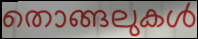
തൊങ്ങലുകൾ